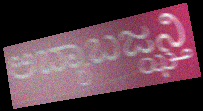
ಅಬ್ಯಾಬಜ್ಝನ್ತಿ